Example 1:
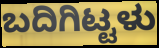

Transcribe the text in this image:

ಬದಿಗಿಟ್ಟಳು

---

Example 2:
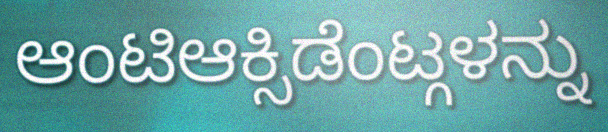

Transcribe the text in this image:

ಆಂಟಿಆಕ್ಸಿಡೆಂಟ್ಗಳನ್ನು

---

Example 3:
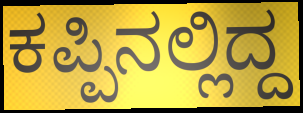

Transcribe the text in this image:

ಕಪ್ಪಿನಲ್ಲಿದ್ದ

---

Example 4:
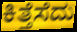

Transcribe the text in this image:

ಕಿತ್ತೆಸೆದು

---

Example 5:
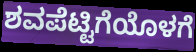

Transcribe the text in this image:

ಶವಪೆಟ್ಟಿಗೆಯೊಳಗೆ